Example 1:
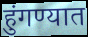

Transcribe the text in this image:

हुंगण्यात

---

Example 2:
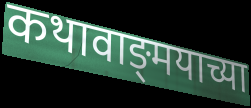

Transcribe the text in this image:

कथावाङ्मयाच्या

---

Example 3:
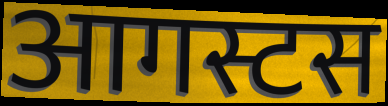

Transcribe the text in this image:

आगस्टस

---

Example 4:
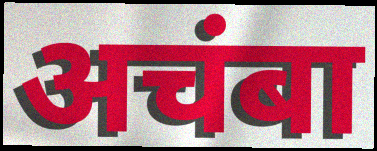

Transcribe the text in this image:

अचंबा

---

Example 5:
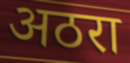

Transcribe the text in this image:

अठरा